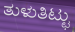
ತುಳುತಿಟ್ಟು